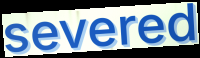
severed